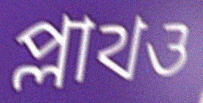
প্লাথও